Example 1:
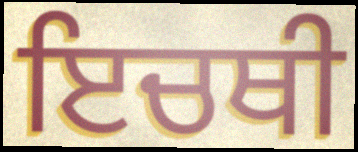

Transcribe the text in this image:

ਇਚਥੀ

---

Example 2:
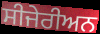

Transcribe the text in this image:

ਸੀਜੇਰੀਅਨ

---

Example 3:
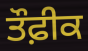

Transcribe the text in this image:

ਤੌਫ਼ੀਕ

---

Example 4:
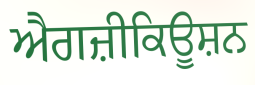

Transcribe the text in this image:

ਐਗਜ਼ੀਕਿਊਸ਼ਨ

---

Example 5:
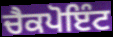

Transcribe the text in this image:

ਚੈਕਪੋਇੰਟ